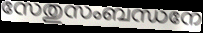
സേതുസംബന്ധനേ